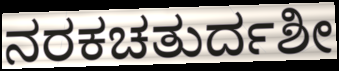
ನರಕಚತುರ್ದಶೀ